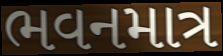
ભવનમાત્ર